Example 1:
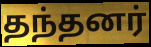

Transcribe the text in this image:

தந்தனர்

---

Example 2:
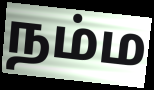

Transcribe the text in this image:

நம்ம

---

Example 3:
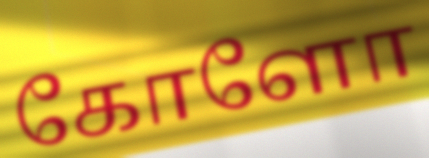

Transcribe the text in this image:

கோளோ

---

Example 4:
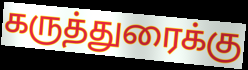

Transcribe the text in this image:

கருத்துரைக்கு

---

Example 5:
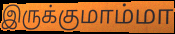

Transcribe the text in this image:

இருக்குமாம்மா